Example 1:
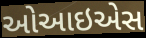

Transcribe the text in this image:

ઓઆઇએસ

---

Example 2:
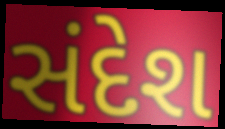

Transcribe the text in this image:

સંદેશ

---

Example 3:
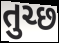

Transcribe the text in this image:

તુચ્છ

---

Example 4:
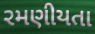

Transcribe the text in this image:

રમણીયતા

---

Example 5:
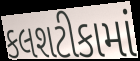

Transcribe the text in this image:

કલશટીકામાં